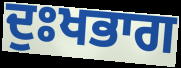
ਦੁਃਖਭਾਗ